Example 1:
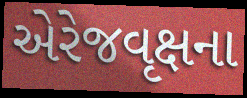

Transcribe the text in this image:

એરેજવૃક્ષના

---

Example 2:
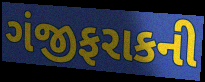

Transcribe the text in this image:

ગંજીફરાકની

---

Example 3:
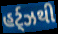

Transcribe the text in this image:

હર્ટ્ઝથી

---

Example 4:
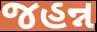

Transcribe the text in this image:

જહન્ન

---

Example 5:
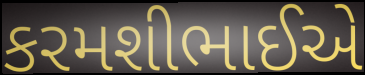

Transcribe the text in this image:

કરમશીભાઈએ